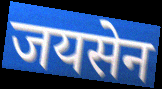
जयसेन